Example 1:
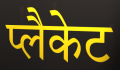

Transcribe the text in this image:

प्लैकेट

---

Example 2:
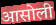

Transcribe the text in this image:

आसोली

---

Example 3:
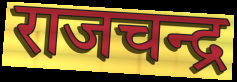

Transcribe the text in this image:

राजचन्द्र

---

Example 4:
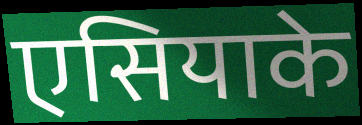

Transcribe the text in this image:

एसियाके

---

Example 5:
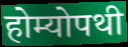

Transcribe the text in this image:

होम्योपथी